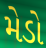
મેડો